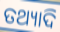
ତଥ୍ୟାଦି